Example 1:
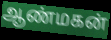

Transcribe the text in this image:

ஆண்மகன்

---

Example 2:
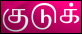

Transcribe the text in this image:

குடுக்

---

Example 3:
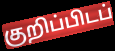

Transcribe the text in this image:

குறிப்பிடப்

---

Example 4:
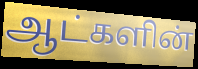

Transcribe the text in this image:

ஆட்களின்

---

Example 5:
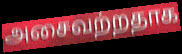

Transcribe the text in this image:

அசைவற்றதாக